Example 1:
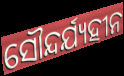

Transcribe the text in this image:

ସୌନ୍ଦର୍ଯ୍ୟହୀନ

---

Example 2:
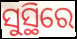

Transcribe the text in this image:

ସୁସ୍ଥିରେ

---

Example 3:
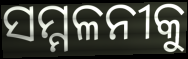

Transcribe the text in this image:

ସମ୍ମଳନୀକୁ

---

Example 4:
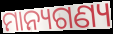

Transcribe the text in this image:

ମାନ୍ୟଗଣ୍ୟ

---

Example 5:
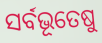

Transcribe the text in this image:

ସର୍ବଭୂତେଷୁ